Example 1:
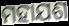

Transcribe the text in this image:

ମହାଯଶ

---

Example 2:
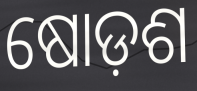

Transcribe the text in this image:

ଷୋଡ଼ଶ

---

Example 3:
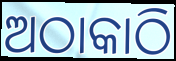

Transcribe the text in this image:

ଅଠାକାଠି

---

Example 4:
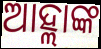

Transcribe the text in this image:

ଆହ୍ଲାଙ୍କ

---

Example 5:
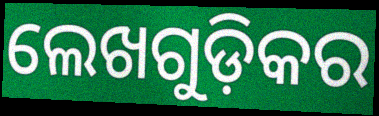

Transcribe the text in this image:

ଲେଖଗୁଡ଼ିକର